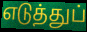
எடுத்துப்